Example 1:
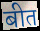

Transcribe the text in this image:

बीत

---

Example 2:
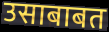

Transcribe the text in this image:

उसाबाबत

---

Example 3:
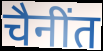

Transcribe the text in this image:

चैनींत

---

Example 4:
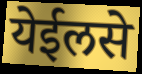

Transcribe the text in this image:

येईलसे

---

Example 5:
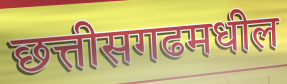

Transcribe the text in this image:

छत्तीसगढमधील